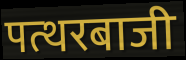
पत्थरबाजी